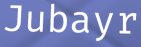
Jubayr